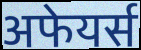
अफेयर्स